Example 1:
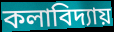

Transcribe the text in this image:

কলাবিদ্যায়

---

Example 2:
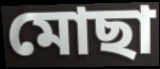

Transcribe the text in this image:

মোছা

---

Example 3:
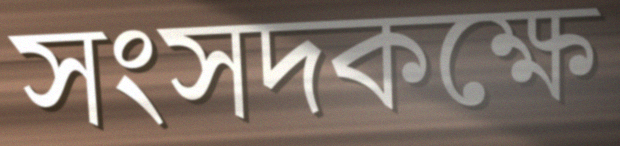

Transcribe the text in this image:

সংসদকক্ষে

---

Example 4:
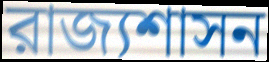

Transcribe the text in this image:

রাজ্যশাসন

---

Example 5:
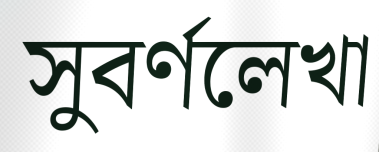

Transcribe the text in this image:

সুবর্ণলেখা